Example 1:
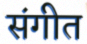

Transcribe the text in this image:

संगीत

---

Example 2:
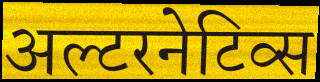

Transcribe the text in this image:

अल्टरनेटिव्स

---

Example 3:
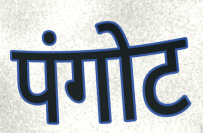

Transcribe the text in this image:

पंगोट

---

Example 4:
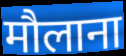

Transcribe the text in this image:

मौलाना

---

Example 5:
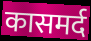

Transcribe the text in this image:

कासमर्द